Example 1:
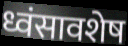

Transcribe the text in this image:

ध्वंसावशेष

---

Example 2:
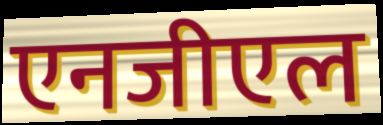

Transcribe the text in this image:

एनजीएल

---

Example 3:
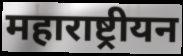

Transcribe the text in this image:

महाराष्ट्रीयन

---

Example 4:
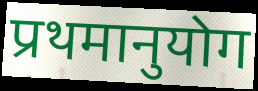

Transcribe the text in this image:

प्रथमानुयोग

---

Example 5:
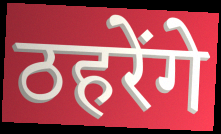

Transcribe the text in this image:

ठहरेंगे